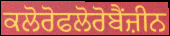
ਕਲੋਰੋਫਲੋਰੋਬੈਂਜ਼ੀਨ